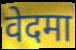
वेदमा